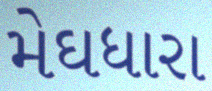
મેઘધારા